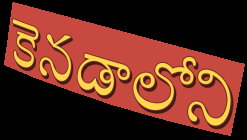
కెనడాలోని